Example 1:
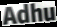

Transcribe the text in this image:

Adhu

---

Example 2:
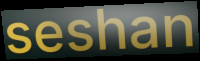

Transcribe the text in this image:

seshan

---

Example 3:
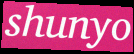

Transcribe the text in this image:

shunyo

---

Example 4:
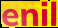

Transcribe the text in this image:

enil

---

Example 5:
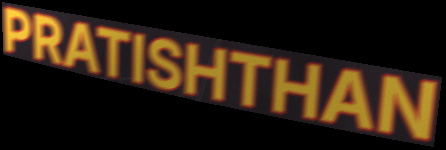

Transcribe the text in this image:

PRATISHTHAN